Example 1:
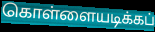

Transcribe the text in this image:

கொள்ளையடிக்கப்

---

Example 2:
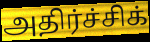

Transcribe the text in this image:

அதிர்ச்சிக்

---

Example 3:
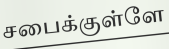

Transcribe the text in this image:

சபைக்குள்ளே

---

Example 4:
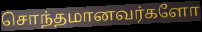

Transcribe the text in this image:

சொந்தமானவர்களோ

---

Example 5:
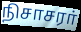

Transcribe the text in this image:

நிசாசரர்